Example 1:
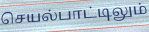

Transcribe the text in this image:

செயல்பாட்டிலும்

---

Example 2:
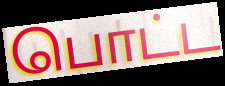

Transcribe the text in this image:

பொட்ட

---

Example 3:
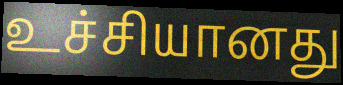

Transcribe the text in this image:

உச்சியானது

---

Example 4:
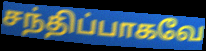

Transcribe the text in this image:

சந்திப்பாகவே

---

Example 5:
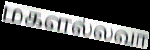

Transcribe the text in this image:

மகளல்லவா